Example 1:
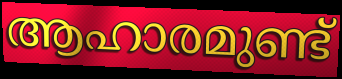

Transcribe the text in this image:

ആഹാരമുണ്ട്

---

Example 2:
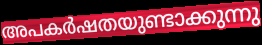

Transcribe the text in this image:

അപകർഷതയുണ്ടാക്കുന്നു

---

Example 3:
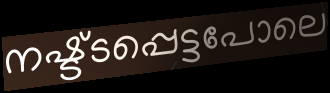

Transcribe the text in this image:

നഷ്ട്ടപ്പെട്ടപോലെ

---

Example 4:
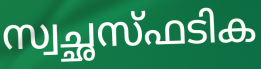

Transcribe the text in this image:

സ്വച്ഛസ്ഫടിക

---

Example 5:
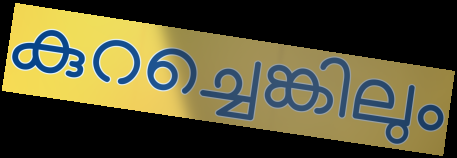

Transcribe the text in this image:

കുറച്ചെങ്കിലും